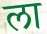
ला